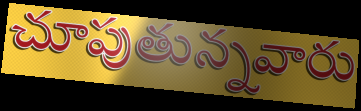
చూపుతున్నవారు